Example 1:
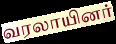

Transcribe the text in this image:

வரலாயினர்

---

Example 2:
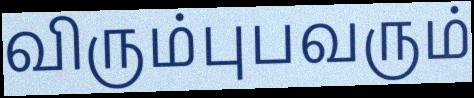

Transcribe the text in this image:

விரும்புபவரும்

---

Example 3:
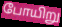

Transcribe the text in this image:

போயிறு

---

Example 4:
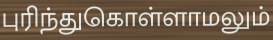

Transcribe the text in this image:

புரிந்துகொள்ளாமலும்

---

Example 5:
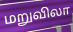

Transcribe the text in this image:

மறுவிலா